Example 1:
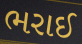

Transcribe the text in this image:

ભરાઈ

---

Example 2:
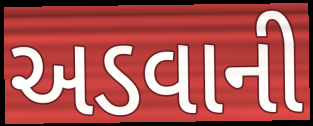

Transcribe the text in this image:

અડવાની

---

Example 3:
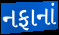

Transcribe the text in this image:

નફાનાં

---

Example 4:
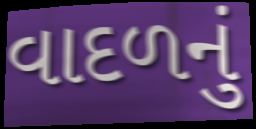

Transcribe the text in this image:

વાદળનું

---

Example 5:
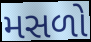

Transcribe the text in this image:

મસળો